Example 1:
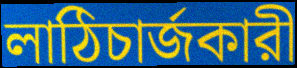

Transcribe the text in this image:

লাঠিচার্জকারী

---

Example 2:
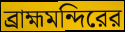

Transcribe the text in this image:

ব্রাহ্মমন্দিরের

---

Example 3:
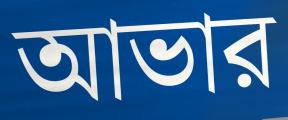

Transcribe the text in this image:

আভার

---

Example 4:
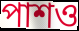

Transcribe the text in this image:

পাশও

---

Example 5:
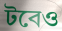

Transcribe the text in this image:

টবেও